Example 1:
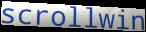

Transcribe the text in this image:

scrollwin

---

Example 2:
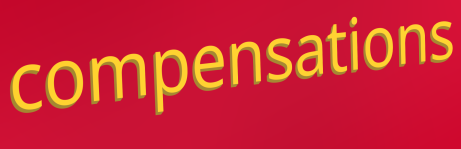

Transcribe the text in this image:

compensations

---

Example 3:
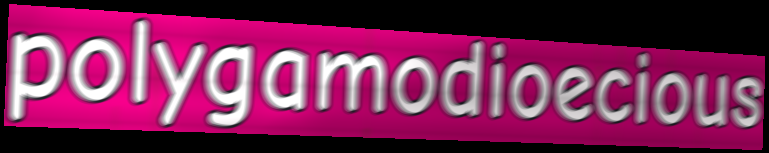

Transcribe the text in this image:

polygamodioecious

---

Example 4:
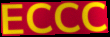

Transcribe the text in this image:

ECCC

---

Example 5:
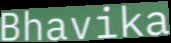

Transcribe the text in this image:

Bhavika